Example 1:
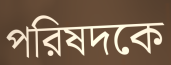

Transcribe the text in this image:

পরিষদকে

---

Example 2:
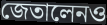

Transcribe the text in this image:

জেতালেনও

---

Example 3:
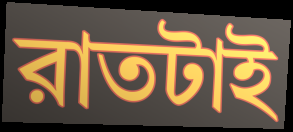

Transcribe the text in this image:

রাতটাই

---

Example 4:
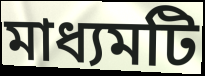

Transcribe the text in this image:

মাধ্যমটি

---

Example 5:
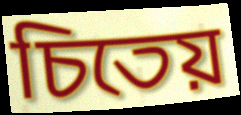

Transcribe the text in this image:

চিতেয়